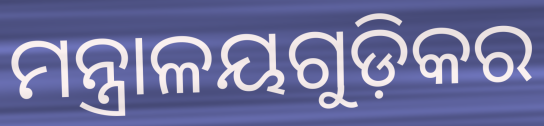
ମନ୍ତ୍ରାଳୟଗୁଡ଼ିକର